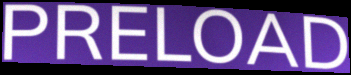
PRELOAD